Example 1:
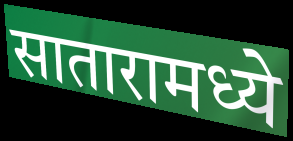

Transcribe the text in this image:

सातारामध्ये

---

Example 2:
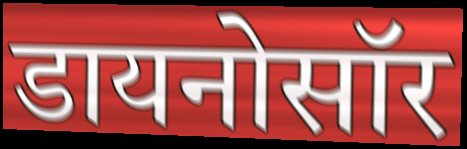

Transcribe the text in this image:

डायनोसॉर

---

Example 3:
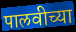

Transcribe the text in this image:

पालवीच्या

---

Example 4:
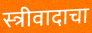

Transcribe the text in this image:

स्त्रीवादाचा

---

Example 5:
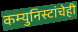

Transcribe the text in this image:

कम्युनिस्टांचेही